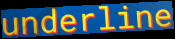
underline